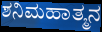
ಶನಿಮಹಾತ್ಮನ